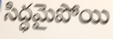
సిద్ధమైపోయి